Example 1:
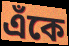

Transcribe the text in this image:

এঁকে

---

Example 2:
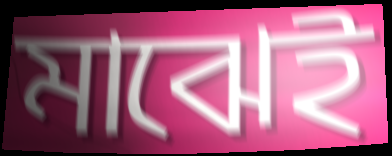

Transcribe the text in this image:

মাঝেই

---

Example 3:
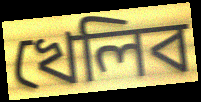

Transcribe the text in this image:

খেলিব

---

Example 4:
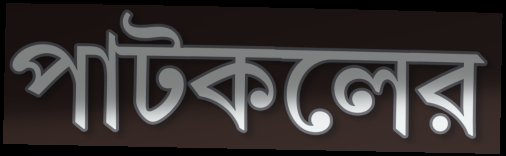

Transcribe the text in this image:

পাটকলের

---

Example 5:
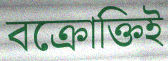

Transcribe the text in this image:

বক্রোক্তিই